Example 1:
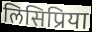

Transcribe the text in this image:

लिसिप्रिया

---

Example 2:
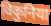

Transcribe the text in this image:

विकुनिया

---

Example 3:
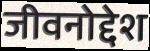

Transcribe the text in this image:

जीवनोद्देश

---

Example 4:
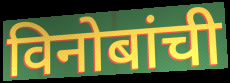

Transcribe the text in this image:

विनोबांची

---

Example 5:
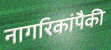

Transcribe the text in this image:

नागरिकांपैकी